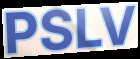
PSLV